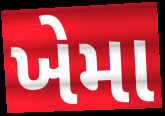
ખેમા